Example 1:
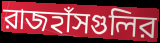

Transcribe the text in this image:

রাজহাঁসগুলির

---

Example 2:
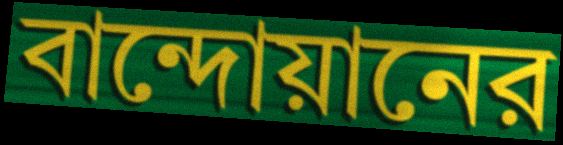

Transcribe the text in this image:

বান্দোয়ানের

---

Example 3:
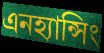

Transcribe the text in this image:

এনহ্যান্সিং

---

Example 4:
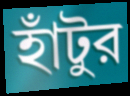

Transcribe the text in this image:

হাঁটুর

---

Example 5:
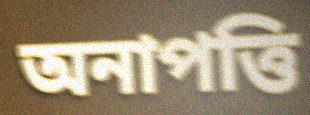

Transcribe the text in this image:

অনাপত্তি